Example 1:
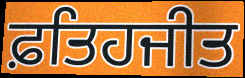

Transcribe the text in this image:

ਫ਼ਤਿਹਜੀਤ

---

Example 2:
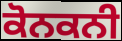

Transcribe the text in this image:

ਕੋਨਕਨੀ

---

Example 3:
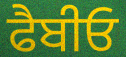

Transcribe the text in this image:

ਫੈਬੀਓ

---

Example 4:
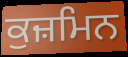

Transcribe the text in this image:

ਕੁਜ਼ਮਿਨ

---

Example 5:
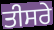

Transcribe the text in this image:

ਤੀਸਰੇ